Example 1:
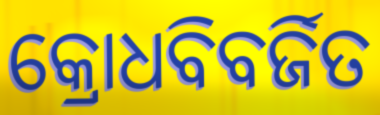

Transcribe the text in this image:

କ୍ରୋଧବିବର୍ଜିତ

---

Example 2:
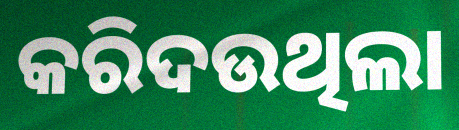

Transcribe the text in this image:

କରିଦଉଥିଲା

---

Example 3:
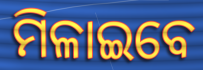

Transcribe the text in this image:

ମିଳାଇବେ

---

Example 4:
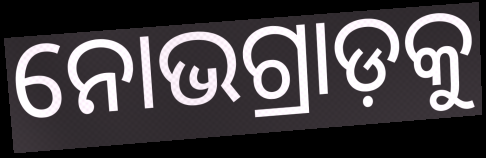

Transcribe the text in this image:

ନୋଭଗ୍ରାଡ଼କୁ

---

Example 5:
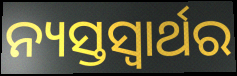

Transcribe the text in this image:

ନ୍ୟସ୍ତସ୍ଵାର୍ଥର